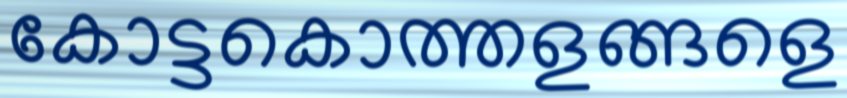
കോട്ടകൊത്തളങ്ങളെ